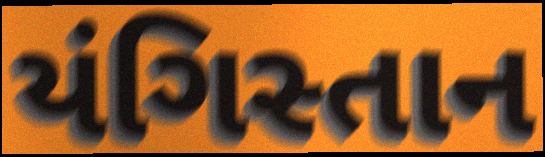
યંગિસ્તાન